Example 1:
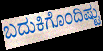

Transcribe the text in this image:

ಬದುಕಿಗೊಂದಿಷ್ಟು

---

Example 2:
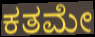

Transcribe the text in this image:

ಕತಮೇ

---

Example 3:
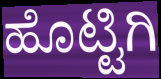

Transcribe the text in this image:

ಹೊಟ್ಟಿಗಿ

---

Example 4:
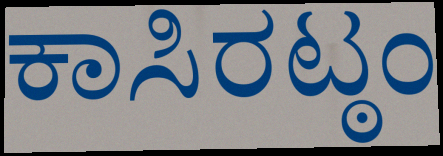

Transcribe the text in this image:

ಕಾಸಿರಟ್ಠಂ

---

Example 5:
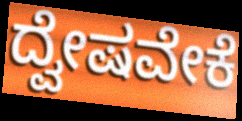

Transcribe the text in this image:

ದ್ವೇಷವೇಕೆ